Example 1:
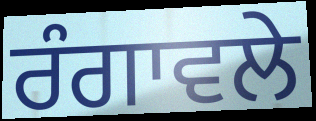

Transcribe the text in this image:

ਰੰਗਾਵਲੇ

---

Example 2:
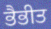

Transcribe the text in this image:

ਭੈਭੀਤ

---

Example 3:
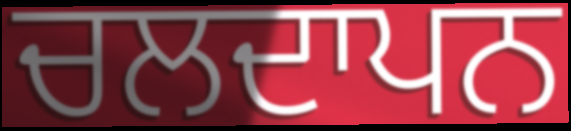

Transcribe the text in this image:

ਚਲਦਾਪਨ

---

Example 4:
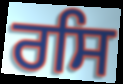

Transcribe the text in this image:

ਰਸਿ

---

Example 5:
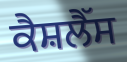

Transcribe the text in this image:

ਕੈਸ਼ਲੈੱਸ